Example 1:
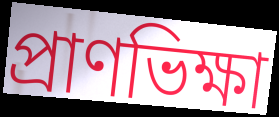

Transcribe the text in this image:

প্রাণভিক্ষা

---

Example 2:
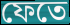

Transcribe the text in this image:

ফেতে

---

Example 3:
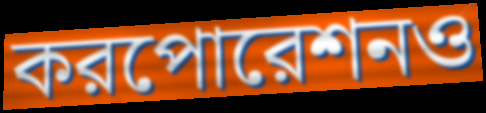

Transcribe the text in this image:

করপোরেশনও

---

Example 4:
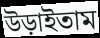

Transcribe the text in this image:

উড়াইতাম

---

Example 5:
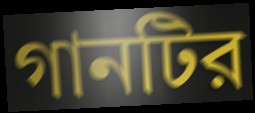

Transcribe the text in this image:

গানটির